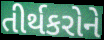
તીર્થકરોને